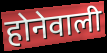
होनेवाली